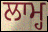
ਲਾਮ੍ਹ